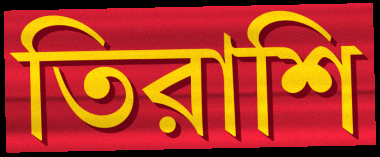
তিরাশি